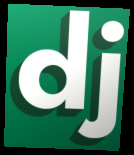
dj